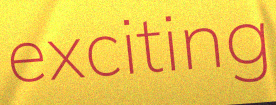
exciting